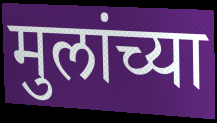
मुलांच्या